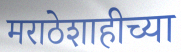
मराठेशाहीच्या